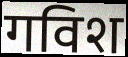
गविश